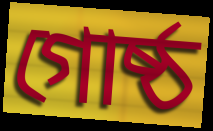
গোষ্ঠ